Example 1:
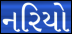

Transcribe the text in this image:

નરિયો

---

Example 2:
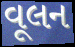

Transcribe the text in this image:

વૂલન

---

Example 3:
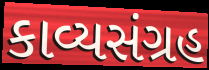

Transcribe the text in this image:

કાવ્યસંગ્રહ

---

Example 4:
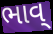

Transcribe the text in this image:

ભાવ્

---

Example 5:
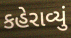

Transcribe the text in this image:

કહેરાવ્યું